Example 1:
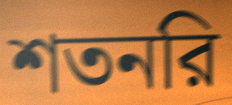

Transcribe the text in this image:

শতনরি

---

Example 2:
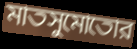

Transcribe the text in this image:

মাতসুমোতোর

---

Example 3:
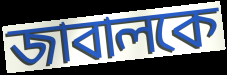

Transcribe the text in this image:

জাবালকে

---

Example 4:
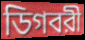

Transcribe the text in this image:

ডিগবরী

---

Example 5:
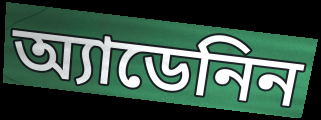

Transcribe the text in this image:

অ্যাডেনিন